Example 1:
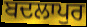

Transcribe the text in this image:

ਬਦਲਾਪੁਰ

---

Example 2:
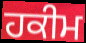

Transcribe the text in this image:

ਹਕੀਮ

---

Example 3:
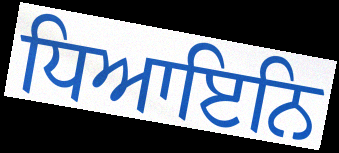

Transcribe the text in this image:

ਧਿਆਇਨਿ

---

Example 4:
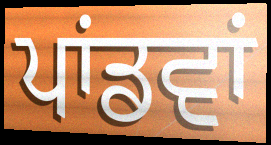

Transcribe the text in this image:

ਪਾਂਡਵਾਂ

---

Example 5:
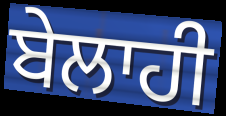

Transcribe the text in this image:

ਬੇਲਾਹੀ